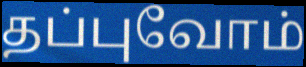
தப்புவோம்